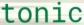
tonic